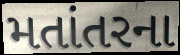
મતાંતરના